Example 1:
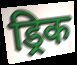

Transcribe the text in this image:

ड्रिक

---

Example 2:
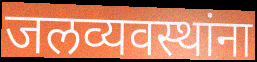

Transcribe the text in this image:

जलव्यवस्थांना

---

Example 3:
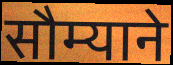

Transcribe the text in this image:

सौम्याने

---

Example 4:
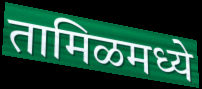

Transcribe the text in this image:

तामिळमध्ये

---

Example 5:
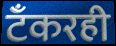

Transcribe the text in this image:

टँकरही